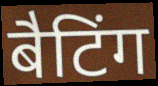
बैटिंग